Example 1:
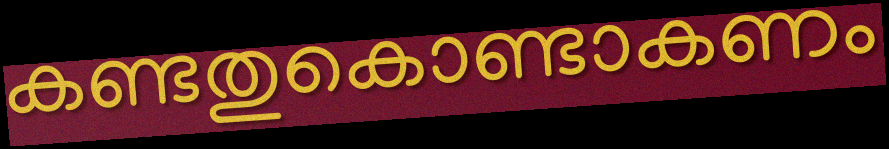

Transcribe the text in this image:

കണ്ടതുകൊണ്ടാകണം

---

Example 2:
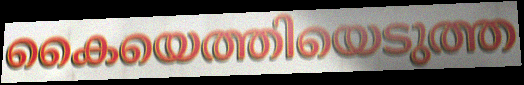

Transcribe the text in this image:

കൈയെത്തിയെടുത്ത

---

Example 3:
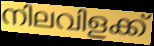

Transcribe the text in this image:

നിലവിളക്ക്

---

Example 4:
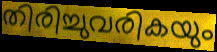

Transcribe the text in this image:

തിരിച്ചുവരികയും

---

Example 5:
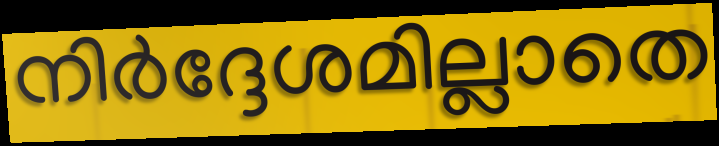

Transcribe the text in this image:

നിർദ്ദേശമില്ലാതെ